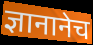
ज्ञानानेच